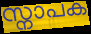
സ്നാപക